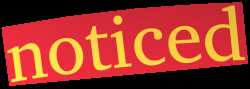
noticed